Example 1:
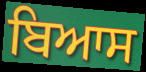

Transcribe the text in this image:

ਬਿਆਸ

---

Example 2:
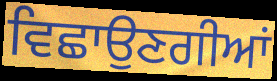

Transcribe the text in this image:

ਵਿਛਾਉਣਗੀਆਂ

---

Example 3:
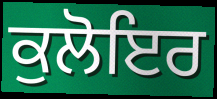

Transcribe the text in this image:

ਕੁਲੋਇਰ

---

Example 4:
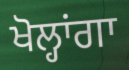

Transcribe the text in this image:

ਖੋਲ੍ਹਾਂਗਾ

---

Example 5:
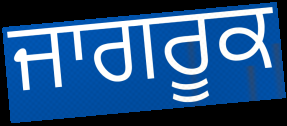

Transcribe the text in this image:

ਜਾਗਰੂਕ